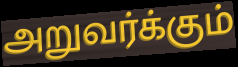
அறுவர்க்கும்